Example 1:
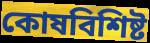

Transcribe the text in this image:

কোষবিশিষ্ট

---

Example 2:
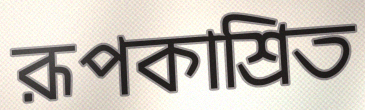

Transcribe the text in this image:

রূপকাশ্রিত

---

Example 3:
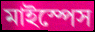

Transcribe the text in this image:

মাইস্পেস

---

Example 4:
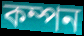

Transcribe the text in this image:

কম্পন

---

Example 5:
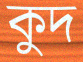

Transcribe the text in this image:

কুদ